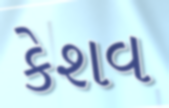
કેશવ